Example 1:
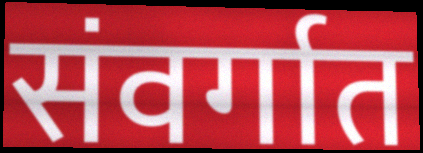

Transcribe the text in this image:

संवर्गात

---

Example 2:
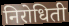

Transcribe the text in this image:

निरोधिती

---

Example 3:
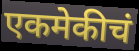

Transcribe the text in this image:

एकमेकीचं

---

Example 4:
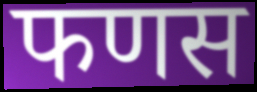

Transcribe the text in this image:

फणस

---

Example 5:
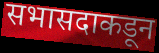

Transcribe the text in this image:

सभासदाकडून